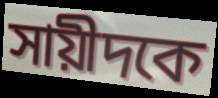
সায়ীদকে